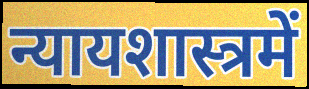
न्यायशास्त्रमें